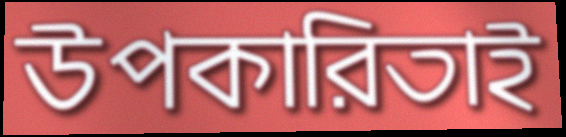
উপকারিতাই